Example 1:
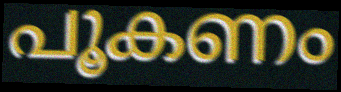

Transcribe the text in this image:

പൂകണം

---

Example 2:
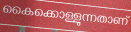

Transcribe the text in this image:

കൈക്കൊള്ളുന്നതാണ്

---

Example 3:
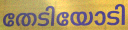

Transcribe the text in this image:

തേടിയോടി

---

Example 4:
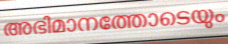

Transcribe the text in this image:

അഭിമാനത്തോടെയും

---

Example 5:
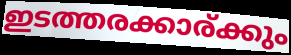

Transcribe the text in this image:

ഇടത്തരക്കാര്ക്കും